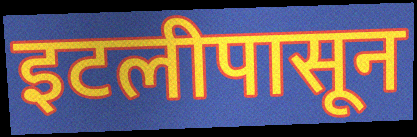
इटलीपासून